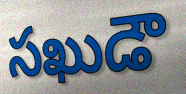
సఖుడౌ